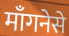
माँगनेसे